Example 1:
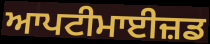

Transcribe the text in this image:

ਆਪਟੀਮਾਈਜ਼ਡ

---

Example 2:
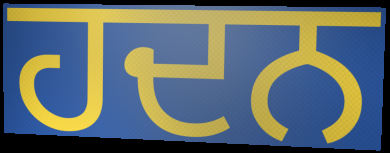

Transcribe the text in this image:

ਹਦਨ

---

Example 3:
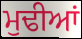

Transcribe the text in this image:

ਮੁਢੀਆਂ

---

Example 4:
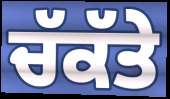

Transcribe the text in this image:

ਚੱਕੱਤੇ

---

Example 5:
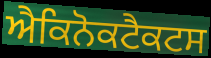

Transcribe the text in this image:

ਐਕਿਨੋਕਟੈਕਟਸ